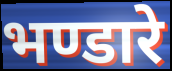
भण्डारे